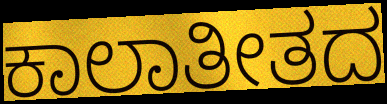
ಕಾಲಾತೀತದ